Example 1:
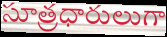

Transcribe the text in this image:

సూత్రధారులుగా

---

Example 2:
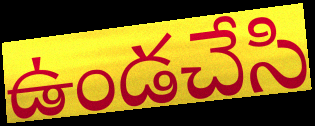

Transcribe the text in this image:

ఉండచేసి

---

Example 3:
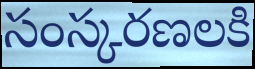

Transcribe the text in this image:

సంస్కరణలకి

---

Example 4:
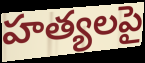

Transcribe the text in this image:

హత్యలపై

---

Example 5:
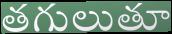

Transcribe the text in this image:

తగులుతూ